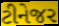
ટીનેજર